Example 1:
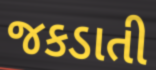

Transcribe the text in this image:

જકડાતી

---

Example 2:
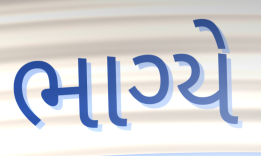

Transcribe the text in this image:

ભાગ્યે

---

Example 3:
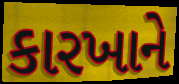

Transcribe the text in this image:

કારખાને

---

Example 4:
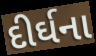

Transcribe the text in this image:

દીર્ઘના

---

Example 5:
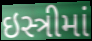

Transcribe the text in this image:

ઇસ્ત્રીમાં